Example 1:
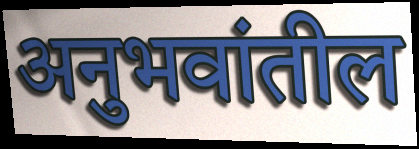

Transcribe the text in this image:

अनुभवांतील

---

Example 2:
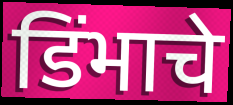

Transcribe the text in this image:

डिंभाचे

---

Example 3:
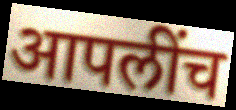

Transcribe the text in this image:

आपलींच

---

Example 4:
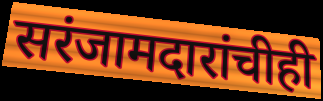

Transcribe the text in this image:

सरंजामदारांचीही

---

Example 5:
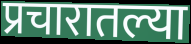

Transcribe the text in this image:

प्रचारातल्या